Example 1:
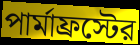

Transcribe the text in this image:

পার্মাফ্রস্টের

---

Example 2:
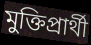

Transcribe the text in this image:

মুক্তিপ্রার্থী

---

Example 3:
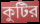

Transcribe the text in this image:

কুটির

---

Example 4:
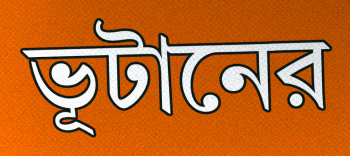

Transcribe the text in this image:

ভূটানের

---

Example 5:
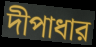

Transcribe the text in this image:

দীপাধার